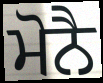
ਮੋਨੈ